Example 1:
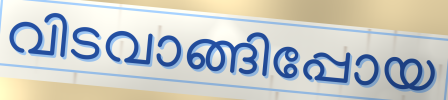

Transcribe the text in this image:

വിടവാങ്ങിപ്പോയ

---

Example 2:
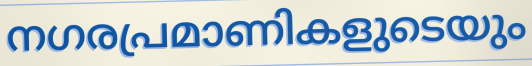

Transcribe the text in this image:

നഗരപ്രമാണികളുടെയും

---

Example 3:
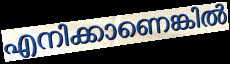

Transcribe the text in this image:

എനിക്കാണെങ്കിൽ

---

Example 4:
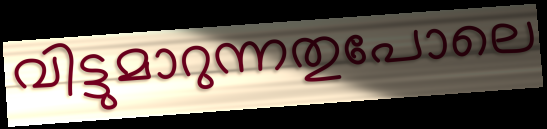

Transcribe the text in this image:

വിട്ടുമാറുന്നതുപോലെ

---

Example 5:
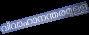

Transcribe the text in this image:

വിവാഹാനന്തരമുള്ള